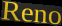
Reno